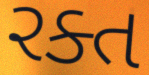
રક્ત